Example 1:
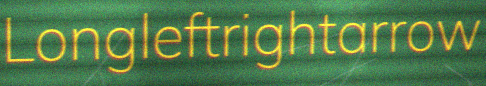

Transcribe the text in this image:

Longleftrightarrow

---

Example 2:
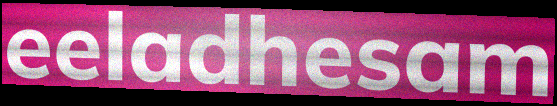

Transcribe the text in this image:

eeladhesam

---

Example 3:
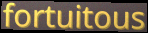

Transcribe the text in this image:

fortuitous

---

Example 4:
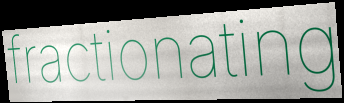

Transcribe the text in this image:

fractionating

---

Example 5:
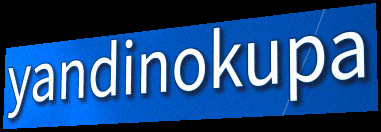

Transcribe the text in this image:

yandinokupa